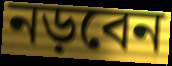
নড়বেন